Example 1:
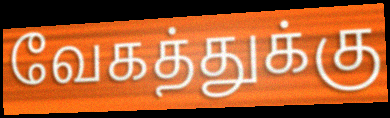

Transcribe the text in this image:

வேகத்துக்கு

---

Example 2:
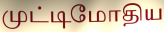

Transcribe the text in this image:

முட்டிமோதிய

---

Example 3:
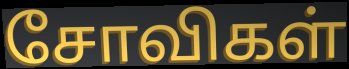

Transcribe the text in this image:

சோவிகள்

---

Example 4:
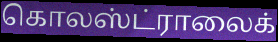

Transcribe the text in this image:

கொலஸ்ட்ராலைக்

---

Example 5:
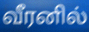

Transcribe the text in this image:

வீரனில்